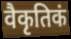
वैकृतिकं